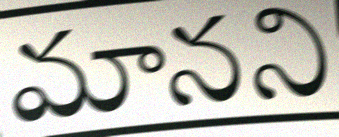
మానని